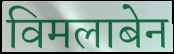
विमलाबेन